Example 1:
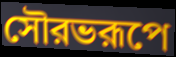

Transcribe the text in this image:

সৌরভরূপে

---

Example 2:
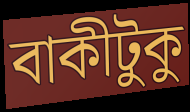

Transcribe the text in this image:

বাকীটুকু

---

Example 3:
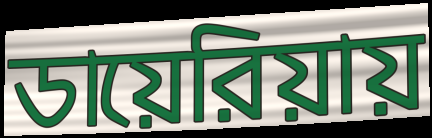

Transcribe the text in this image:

ডায়েরিয়ায়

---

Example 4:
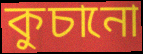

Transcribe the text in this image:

কুচানো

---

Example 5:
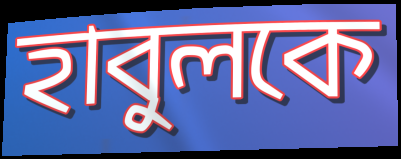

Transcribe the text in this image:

হাবুলকে